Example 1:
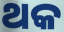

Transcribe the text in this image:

ଥକ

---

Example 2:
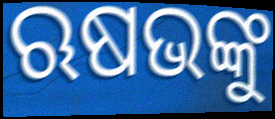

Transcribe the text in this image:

ଋଷଭଙ୍କୁ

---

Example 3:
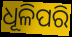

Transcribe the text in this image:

ଧୂଳିପରି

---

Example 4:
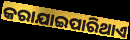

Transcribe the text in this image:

କରାଯାଇପାରିଥାଏ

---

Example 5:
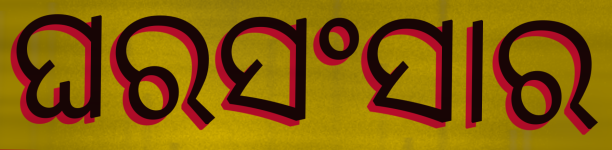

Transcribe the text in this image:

ଘରସଂସାର